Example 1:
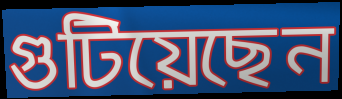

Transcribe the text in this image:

গুটিয়েছেন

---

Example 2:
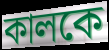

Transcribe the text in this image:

কালকে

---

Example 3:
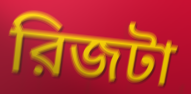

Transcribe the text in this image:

রিজটা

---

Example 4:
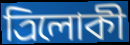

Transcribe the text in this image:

ত্রিলোকী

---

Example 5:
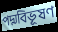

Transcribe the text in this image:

পদ্মবিভূষণ